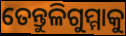
ତେନ୍ତୁଳିଗୁମ୍ମାକୁ